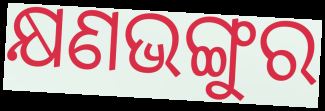
କ୍ଷଣଭଙ୍ଗୁର